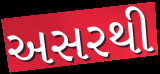
અસરથી